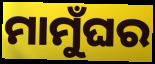
ମାମୁଁଘର